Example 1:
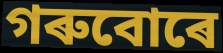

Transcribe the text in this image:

গৰুবোৰে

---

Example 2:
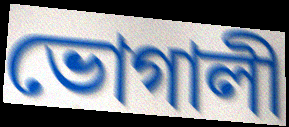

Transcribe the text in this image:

ভোগালী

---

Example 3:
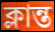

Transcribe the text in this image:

ক্লান্ত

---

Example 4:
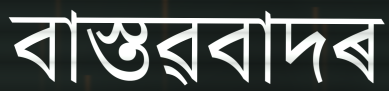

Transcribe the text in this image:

বাস্তৱবাদৰ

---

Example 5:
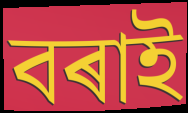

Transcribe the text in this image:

বৰাই